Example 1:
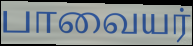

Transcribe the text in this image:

பாவையர்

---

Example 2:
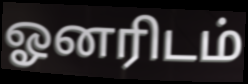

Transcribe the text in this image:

ஓனரிடம்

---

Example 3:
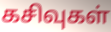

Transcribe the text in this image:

கசிவுகள்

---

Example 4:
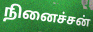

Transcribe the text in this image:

நினைச்சன்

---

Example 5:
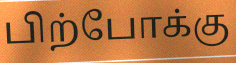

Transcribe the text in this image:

பிற்போக்கு